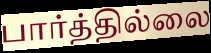
பார்த்தில்லை